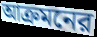
আক্রমনের